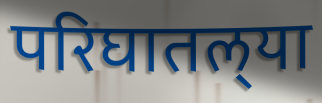
परिघातल्या